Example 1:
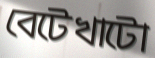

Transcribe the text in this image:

বেটেখাটো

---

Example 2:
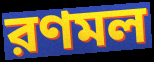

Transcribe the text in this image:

রণমল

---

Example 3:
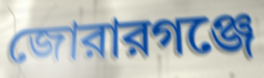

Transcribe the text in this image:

জোরারগঞ্জে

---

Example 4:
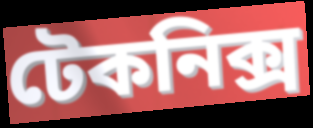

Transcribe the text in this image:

টেকনিক্স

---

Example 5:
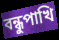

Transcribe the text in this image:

বন্ধুপাখি